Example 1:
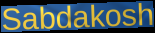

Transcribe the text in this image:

Sabdakosh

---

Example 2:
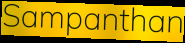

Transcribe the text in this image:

Sampanthan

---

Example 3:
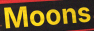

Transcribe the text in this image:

Moons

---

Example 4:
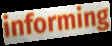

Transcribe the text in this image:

informing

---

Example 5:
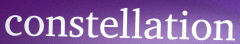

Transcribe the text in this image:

constellation